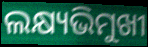
ଲକ୍ଷ୍ୟଭିମୁଖୀ